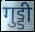
गुड्डी